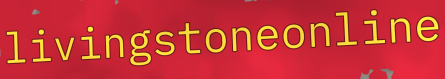
livingstoneonline